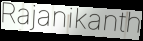
Rajanikanth